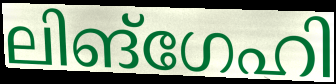
ലിങ്ഗേഹി